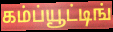
கம்ப்யூட்டிங்